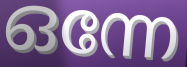
ഒന്നേ